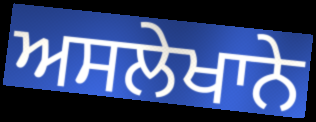
ਅਸਲੇਖਾਨੇ